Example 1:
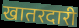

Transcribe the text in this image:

खातरदारी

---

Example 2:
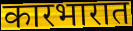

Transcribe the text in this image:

कारभारात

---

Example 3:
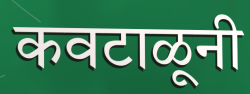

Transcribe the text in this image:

कवटाळूनी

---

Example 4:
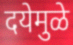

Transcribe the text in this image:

दयेमुळे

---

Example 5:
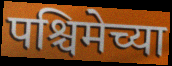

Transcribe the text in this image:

पश्चिमेच्या